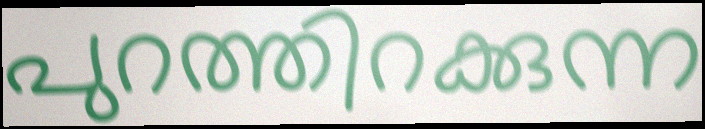
പുറത്തിറക്കുന്ന